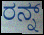
ರನ್ನ್